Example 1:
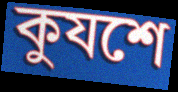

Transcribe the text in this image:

কুযশে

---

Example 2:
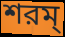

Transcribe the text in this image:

শরম্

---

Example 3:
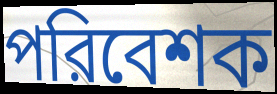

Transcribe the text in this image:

পরিবেশক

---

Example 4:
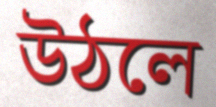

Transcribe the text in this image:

উঠলে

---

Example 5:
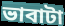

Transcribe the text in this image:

ভাবাটা